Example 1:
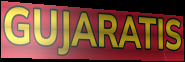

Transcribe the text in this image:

GUJARATIS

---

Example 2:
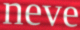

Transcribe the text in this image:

neve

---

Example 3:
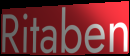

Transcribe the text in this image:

Ritaben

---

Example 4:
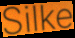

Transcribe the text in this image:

Silke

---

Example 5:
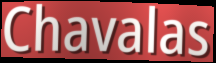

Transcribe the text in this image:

Chavalas